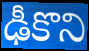
ఢీకొని